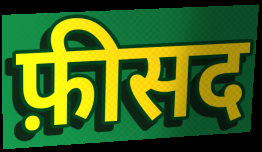
फ़ीसद